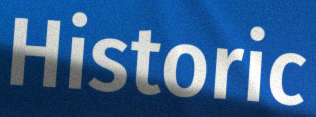
Historic